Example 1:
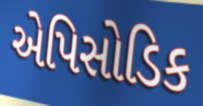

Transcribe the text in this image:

એપિસોડિક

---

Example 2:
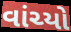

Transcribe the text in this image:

વાંચ્યો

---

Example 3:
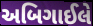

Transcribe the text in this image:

અબિગાઈલે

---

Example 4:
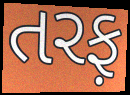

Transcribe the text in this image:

તરફ઼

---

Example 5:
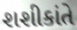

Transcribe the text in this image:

શશીકાંતે